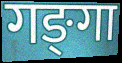
गङ्‍गा